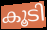
കൂടി